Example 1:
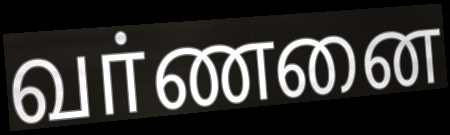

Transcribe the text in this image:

வர்ணனை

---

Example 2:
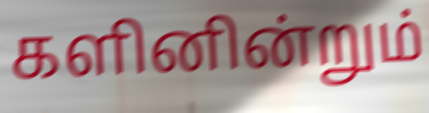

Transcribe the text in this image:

களினின்றும்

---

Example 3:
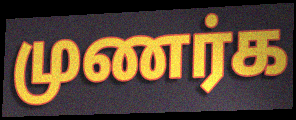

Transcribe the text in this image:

முணர்க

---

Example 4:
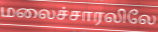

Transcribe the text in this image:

மலைச்சாரலிலே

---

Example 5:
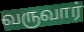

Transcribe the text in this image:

வருவார்